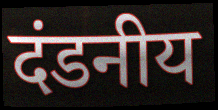
दंडनीय